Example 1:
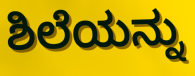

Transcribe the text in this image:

ಶಿಲೆಯನ್ನು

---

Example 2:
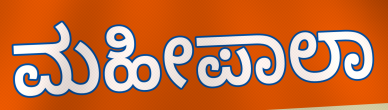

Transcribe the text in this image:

ಮಹೀಪಾಲಾ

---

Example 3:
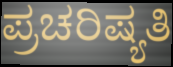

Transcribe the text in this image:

ಪ್ರಚರಿಷ್ಯತಿ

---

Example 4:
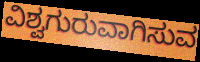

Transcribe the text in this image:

ವಿಶ್ವಗುರುವಾಗಿಸುವ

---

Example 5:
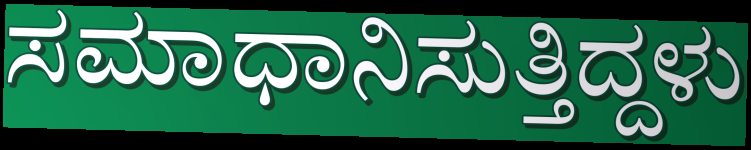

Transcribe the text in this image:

ಸಮಾಧಾನಿಸುತ್ತಿದ್ದಳು